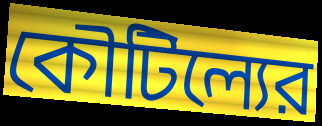
কৌটিল্যের